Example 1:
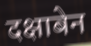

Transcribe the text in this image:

दक्षाबेन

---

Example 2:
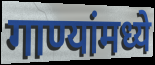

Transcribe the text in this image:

गाण्यांमध्ये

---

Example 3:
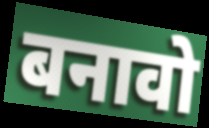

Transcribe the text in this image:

बनावो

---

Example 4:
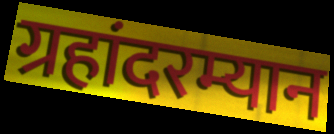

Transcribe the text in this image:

ग्रहांदरम्यान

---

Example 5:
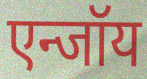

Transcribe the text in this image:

एन्जॉय